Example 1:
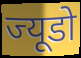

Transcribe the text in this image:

ज्यूडो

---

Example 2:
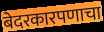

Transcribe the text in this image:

बेदरकारपणाचा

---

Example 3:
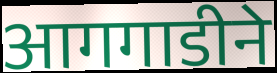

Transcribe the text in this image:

आगगाडीने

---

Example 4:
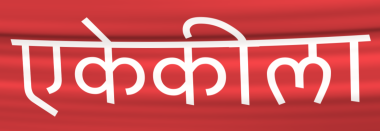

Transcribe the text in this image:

एकेकीला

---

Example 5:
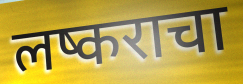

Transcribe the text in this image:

लष्कराचा